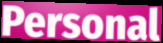
Personal